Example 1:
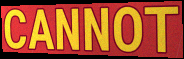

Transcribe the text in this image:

CANNOT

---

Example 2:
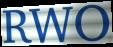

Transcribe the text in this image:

RWO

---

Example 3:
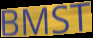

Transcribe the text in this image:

BMST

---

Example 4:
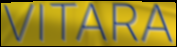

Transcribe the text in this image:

VITARA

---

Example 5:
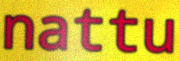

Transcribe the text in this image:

nattu